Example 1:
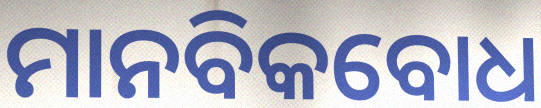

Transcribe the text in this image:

ମାନବିକବୋଧ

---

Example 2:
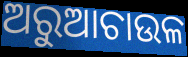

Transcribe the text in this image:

ଅରୁଆଚାଉଳ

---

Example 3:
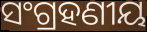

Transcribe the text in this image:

ସଂଗ୍ରହଣୀୟ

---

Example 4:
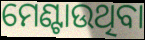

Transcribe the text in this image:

ମେଣ୍ଟାଉଥିବା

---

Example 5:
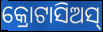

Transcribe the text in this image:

କ୍ରୋଟାସିଅସ୍